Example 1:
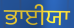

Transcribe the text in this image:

ਭਾਈਯਾ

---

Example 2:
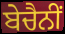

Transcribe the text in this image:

ਬੇਚੈਨੀਂ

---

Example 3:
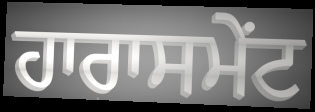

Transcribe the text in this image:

ਹਾਰਾਸਮੇਂਟ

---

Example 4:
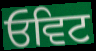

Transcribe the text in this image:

ਓਵਿਟ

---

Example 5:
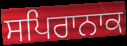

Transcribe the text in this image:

ਸਪਿਰਾਨਾਕ